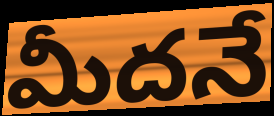
మీదనే